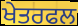
ਖੇਤਰਫਲ